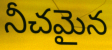
నీచమైన